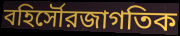
বহির্সৌরজাগতিক